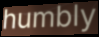
humbly